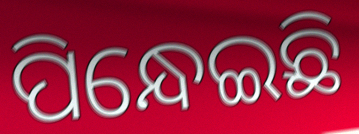
ପିନ୍ଧେଇଛି